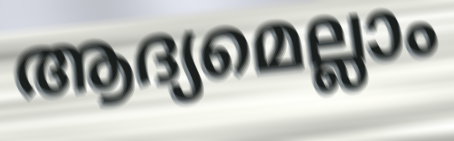
ആദ്യമെല്ലാം